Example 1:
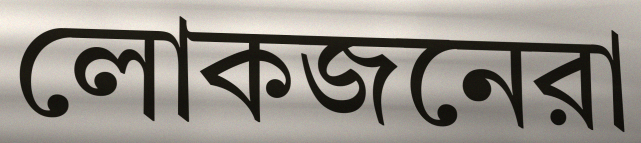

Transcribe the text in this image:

লোকজনেরা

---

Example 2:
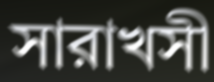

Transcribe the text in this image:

সারাখসী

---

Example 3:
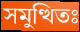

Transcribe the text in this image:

সমুত্থিতঃ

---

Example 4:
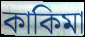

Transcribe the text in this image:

কাকিমা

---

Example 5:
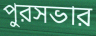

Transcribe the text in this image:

পুরসভার